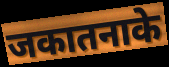
जकातनाके